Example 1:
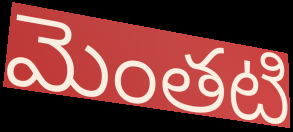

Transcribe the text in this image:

మెంతటి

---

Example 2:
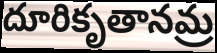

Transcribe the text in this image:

దూరికృతానమ్ర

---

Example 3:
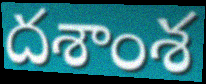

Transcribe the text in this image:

దశాంశ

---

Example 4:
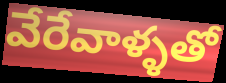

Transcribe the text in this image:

వేరేవాళ్ళతో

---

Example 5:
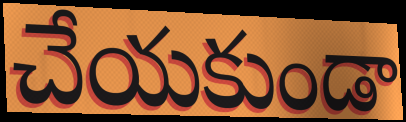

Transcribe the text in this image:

చేయకుండా